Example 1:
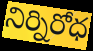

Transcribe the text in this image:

నిర్నిరోధ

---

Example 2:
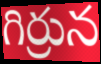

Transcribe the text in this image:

గిర్రున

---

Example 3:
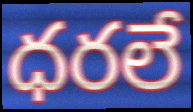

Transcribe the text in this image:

ధరలే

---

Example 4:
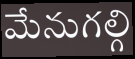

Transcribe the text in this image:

మేనుగల్గి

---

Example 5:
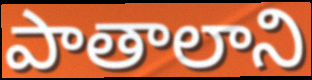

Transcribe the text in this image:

పాతాలాని